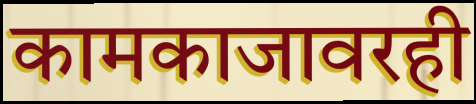
कामकाजावरही